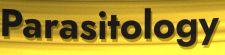
Parasitology